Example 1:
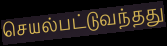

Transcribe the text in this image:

செயல்பட்டுவந்தது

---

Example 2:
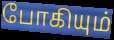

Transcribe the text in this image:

போகியும்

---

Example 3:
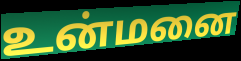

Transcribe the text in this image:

உன்மனை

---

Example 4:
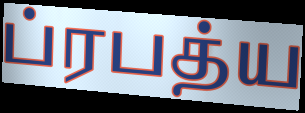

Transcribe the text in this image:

ப்ரபத்ய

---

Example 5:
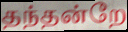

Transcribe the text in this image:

தந்தன்றே